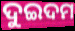
ଦୁଇଦମ